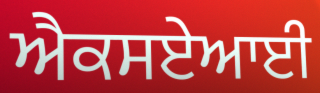
ਐਕਸਏਆਈ